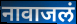
नावाजलं